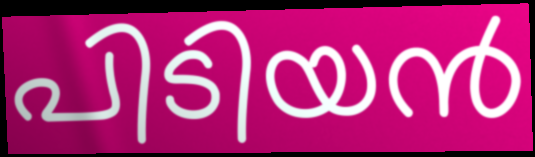
പിടിയൻ